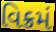
વિક્રમં